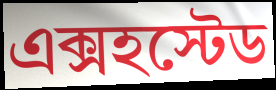
এক্সহস্টেড